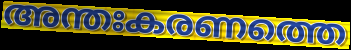
അന്തഃകരണത്തെ